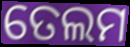
ତେଲମ